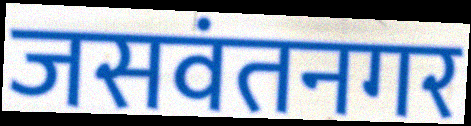
जसवंतनगर